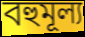
বহুমূল্য